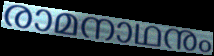
രാമനാഥനും